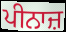
ਪੀਨਾਜ਼